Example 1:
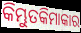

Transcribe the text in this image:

କିମ୍ଭୁତକିମାକାର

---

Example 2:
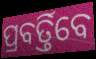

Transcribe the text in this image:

ପ୍ରବର୍ତ୍ତିବେ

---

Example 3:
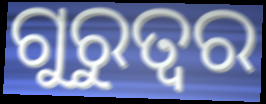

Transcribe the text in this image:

ଗୁରୁତ୍ବର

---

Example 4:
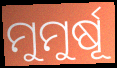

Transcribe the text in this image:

ମୁମୁର୍ଷୂ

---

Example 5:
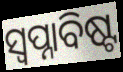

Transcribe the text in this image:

ସ୍ୱପ୍ନାବିଷ୍ଟ